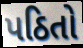
પઠિતો